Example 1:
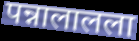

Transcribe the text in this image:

पन्नालालला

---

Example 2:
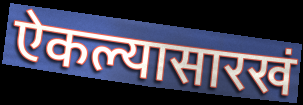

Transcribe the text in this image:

ऐकल्यासारखं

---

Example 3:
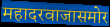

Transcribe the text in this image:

महादरवाजासमोर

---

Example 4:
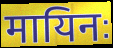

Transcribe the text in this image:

मायिनः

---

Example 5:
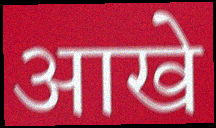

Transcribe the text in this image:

आखे